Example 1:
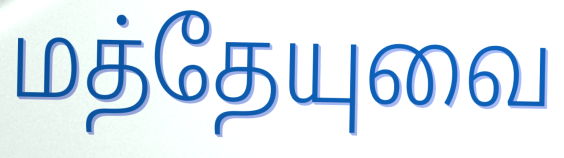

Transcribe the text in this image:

மத்தேயுவை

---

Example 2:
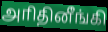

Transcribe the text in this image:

அரிதினீங்கி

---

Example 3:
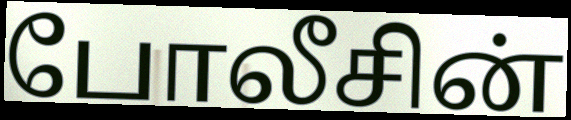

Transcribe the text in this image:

போலீசின்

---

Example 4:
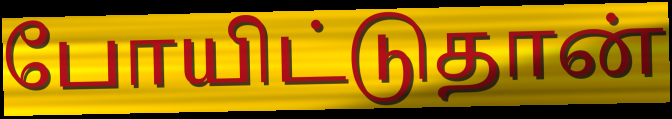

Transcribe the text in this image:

போயிட்டுதான்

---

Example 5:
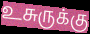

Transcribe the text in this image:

உசுருக்கு